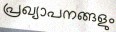
പ്രഖ്യാപനങ്ങളും